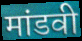
मांडवी